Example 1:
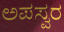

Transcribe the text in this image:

ಅಪಸ್ವರ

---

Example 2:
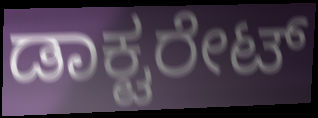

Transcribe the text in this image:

ಡಾಕ್ಟರೇಟ್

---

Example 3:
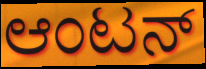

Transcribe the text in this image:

ಆಂಟನ್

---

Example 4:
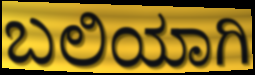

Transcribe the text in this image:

ಬಲಿಯಾಗಿ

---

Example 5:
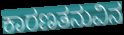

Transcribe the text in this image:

ಕಾರಣತನುವಿನ